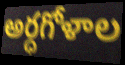
అర్ధగోళాల